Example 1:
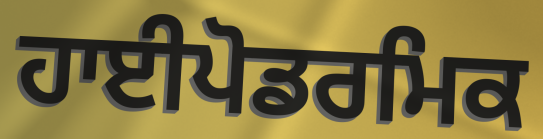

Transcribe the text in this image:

ਹਾਈਪੋਡਰਮਿਕ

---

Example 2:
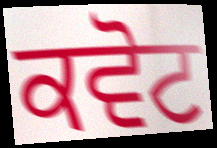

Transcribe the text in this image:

ਕਵੋਟ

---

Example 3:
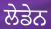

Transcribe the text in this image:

ਲੇਡੇਨ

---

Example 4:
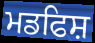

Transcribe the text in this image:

ਮਡਫਿਸ਼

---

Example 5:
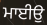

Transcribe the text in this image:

ਮਾਈਉ